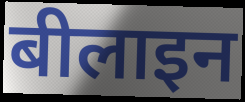
बीलाइन